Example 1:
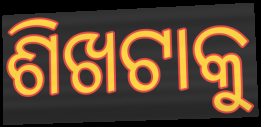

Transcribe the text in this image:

ଶିଖଟାକୁ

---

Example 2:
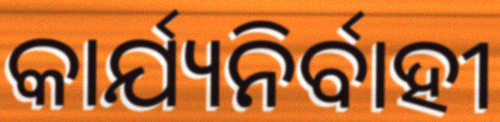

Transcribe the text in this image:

କାର୍ଯ୍ୟନିର୍ବାହୀ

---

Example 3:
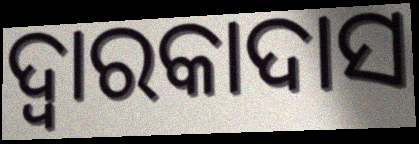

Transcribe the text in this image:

ଦ୍ୱାରକାଦାସ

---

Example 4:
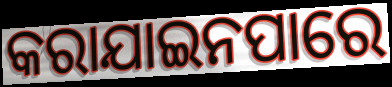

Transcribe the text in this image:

କରାଯାଇନପାରେ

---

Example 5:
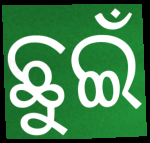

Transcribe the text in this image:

ଛୁଇଁ